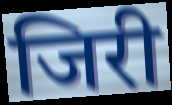
जिरी